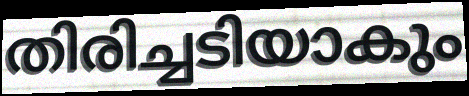
തിരിച്ചടിയാകും